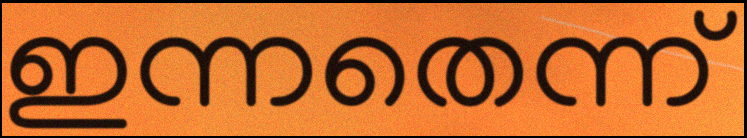
ഇന്നതെന്ന്